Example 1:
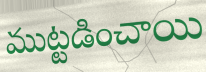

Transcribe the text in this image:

ముట్టడించాయి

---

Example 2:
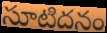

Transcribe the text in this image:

సూటిదనం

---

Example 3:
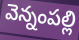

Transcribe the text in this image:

వెన్నంపల్లి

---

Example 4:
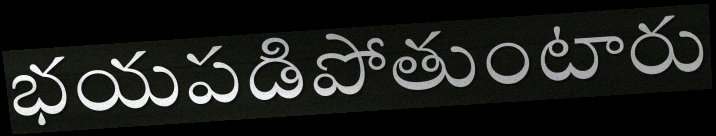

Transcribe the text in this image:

భయపడిపోతుంటారు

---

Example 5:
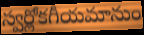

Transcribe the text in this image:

స్వర్లోకగీయమానుం